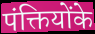
पंक्तियोंके